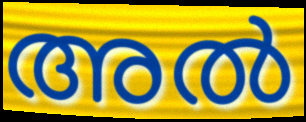
അൽ